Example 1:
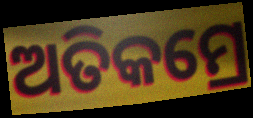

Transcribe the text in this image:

ଅତିକମ୍ରେ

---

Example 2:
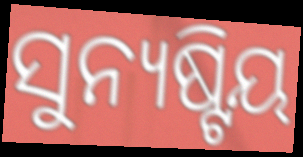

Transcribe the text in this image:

ସୁନ୍ୟଷ୍ଟିୟ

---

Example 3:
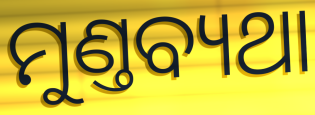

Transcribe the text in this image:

ମୁଣ୍ତବ୍ୟଥା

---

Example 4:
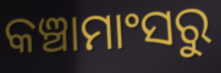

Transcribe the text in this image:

କଞ୍ଚାମାଂସରୁ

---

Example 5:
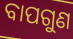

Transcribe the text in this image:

ବାପଗୁଣ